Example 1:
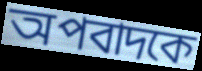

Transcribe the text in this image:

অপবাদকে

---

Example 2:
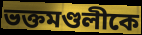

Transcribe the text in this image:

ভক্তমণ্ডলীকে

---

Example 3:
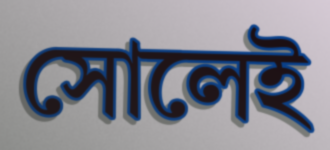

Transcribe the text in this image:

সোলেই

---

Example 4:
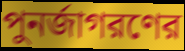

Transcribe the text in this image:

পুনর্জাগরণের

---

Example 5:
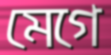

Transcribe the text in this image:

মেগে